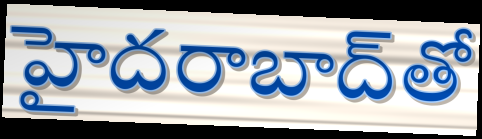
హైదరాబాద్‌తో